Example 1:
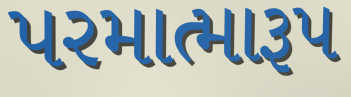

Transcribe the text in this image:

પરમાત્મારૂપ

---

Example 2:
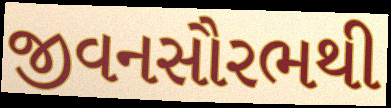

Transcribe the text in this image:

જીવનસૌરભથી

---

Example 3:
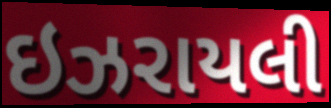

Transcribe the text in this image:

ઇઝરાયલી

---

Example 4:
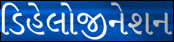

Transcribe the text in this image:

ડિહેલોજીનેશન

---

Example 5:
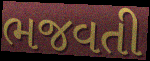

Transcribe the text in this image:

ભજવતી